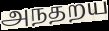
அநதறய